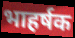
भाहर्षक